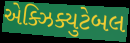
એક્ઝિક્યુટેબલ